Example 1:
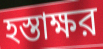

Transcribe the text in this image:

হস্তাক্ষর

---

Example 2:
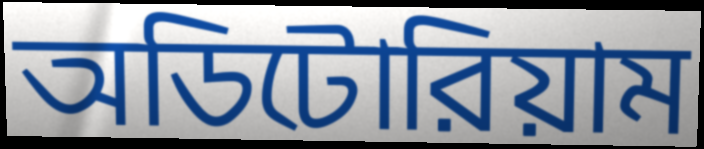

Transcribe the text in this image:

অডিটোরিয়াম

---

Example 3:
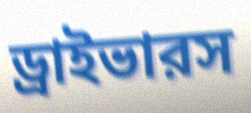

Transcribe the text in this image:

ড্রাইভারস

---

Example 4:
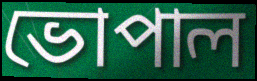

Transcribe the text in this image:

ভোপাল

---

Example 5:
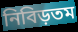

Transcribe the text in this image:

নিবিড়তম